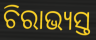
ଚିରାଭ୍ୟସ୍ତ